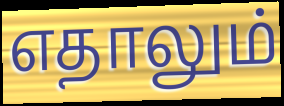
எதாலும்